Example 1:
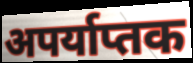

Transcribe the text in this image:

अपर्याप्तक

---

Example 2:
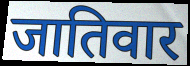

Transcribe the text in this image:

जातिवार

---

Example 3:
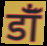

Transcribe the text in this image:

डॉँ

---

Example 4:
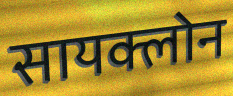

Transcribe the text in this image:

सायक्लोन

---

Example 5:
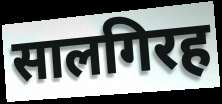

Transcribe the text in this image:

सालगिरह